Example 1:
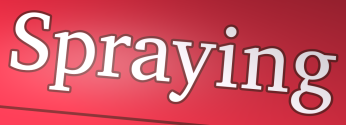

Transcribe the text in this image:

Spraying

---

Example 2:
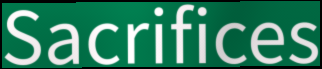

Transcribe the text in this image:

Sacrifices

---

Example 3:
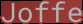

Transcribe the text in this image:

Joffe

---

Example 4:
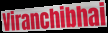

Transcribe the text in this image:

Viranchibhai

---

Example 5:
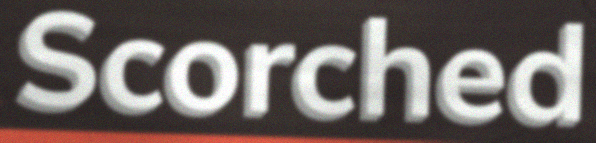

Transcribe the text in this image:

Scorched